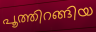
പൂത്തിറങ്ങിയ